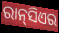
ରାନ୍‌ସିଏର